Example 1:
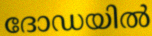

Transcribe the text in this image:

ദോഡയിൽ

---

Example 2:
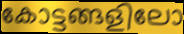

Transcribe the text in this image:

കോട്ടങ്ങളിലോ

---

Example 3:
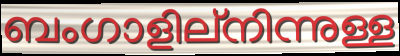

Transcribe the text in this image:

ബംഗാളില്നിന്നുള്ള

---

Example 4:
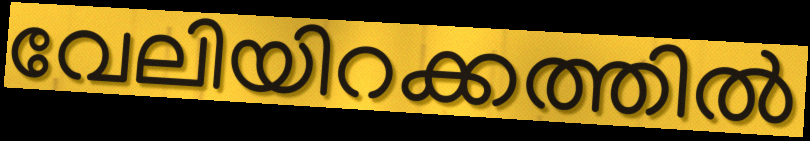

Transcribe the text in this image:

വേലിയിറക്കത്തിൽ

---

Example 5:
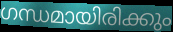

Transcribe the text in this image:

ഗന്ധമായിരിക്കും